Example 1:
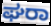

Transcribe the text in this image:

ಘರಾ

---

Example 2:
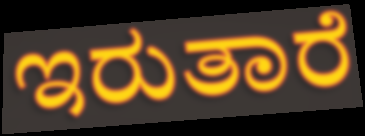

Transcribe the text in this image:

ಇರುತಾರೆ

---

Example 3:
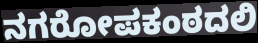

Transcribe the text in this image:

ನಗರೋಪಕಂಠದಲಿ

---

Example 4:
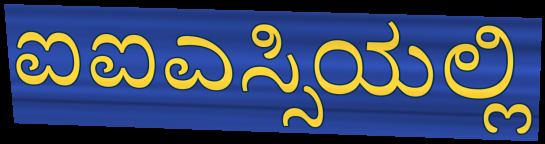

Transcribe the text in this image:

ಐಐಎಸ್ಸಿಯಲ್ಲಿ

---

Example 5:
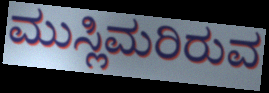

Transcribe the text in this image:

ಮುಸ್ಲಿಮರಿರುವ